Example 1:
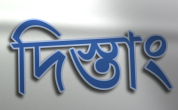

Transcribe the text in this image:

দিস্তাং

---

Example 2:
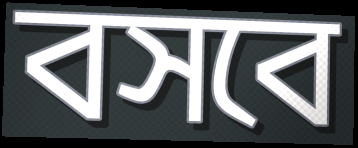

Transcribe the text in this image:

বসবে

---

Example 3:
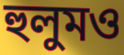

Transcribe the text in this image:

হুলুমও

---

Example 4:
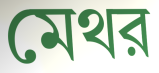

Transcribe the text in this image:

মেথর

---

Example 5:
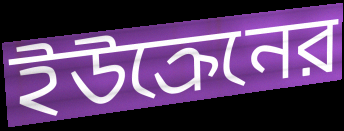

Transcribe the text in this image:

ইউক্রেনের